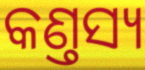
କଣ୍ତସ୍ୟ